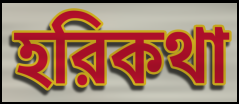
হরিকথা